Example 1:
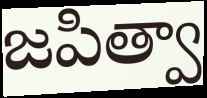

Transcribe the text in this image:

జపిత్వా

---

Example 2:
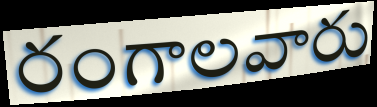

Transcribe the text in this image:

రంగాలవారు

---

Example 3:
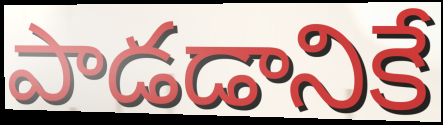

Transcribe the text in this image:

పాడడానికే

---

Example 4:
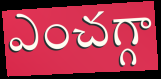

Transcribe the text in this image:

ఎంచగ్గా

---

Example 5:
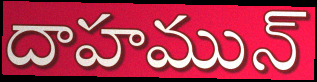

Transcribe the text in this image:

దాహమున్